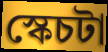
স্কেচটা